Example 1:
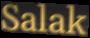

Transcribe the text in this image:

Salak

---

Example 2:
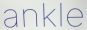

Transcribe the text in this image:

ankle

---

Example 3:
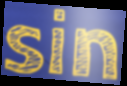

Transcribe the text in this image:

sin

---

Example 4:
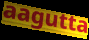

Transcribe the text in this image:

aagutta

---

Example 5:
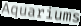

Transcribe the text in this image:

Aquariums